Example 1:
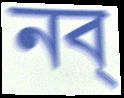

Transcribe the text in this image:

নব্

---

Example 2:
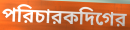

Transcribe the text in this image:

পরিচারকদিগের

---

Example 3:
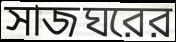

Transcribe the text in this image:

সাজঘরের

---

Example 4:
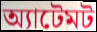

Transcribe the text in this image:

অ্যাটেমট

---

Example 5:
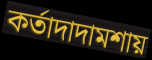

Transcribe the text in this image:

কর্তাদাদামশায়